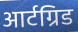
आर्टग्रिड